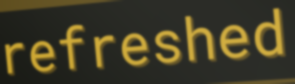
refreshed